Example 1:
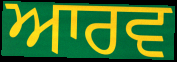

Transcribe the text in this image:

ਆਰਵ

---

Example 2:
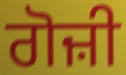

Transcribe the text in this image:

ਗੋਜ਼ੀ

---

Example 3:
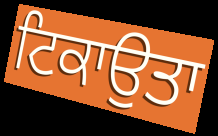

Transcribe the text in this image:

ਟਿਕਾਉਤਾ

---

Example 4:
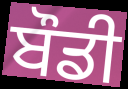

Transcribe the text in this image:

ਬੌਡੀ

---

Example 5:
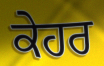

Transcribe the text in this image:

ਕੇਹਰ